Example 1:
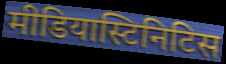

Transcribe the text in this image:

मीडियास्टिनिटिस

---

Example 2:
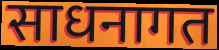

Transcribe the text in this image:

साधनागत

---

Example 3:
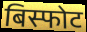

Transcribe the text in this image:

बिस्फोट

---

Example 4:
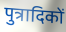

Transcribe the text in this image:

पुत्रादिकों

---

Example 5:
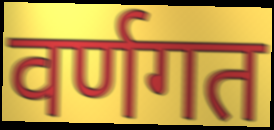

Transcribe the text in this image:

वर्णगत